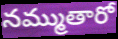
నమ్ముతారో